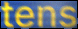
tens